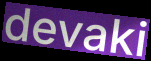
devaki